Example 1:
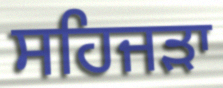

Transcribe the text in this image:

ਸਹਿਜੜਾ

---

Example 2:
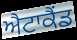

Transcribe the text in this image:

ਐਟਾਕੈਂਡ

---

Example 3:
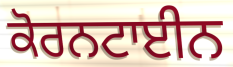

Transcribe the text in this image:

ਕੋਰਨਟਾਈਨ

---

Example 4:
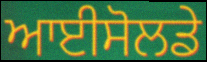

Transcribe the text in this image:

ਆਈਸੋਲਡੇ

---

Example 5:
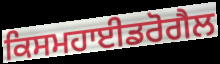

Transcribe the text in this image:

ਕਿਸਮਹਾਈਡਰੋਗੈਲ